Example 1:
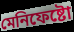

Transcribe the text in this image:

মেনিফেষ্টো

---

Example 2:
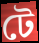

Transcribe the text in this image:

টে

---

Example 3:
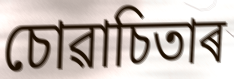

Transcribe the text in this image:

চোৱাচিতাৰ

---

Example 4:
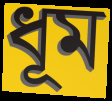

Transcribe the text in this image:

ধূম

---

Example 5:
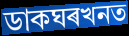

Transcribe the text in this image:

ডাকঘৰখনত